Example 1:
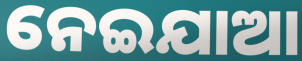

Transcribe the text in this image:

ନେଇଯାଆ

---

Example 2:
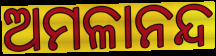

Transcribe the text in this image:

ଅମଳାନନ୍ଦ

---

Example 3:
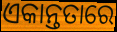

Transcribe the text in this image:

ଏକାନ୍ତତାରେ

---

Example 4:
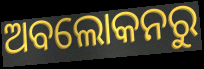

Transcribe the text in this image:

ଅବଲୋକନରୁ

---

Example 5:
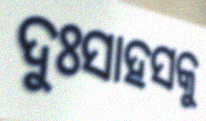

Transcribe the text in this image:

ଦୁଃସାହସକୁ